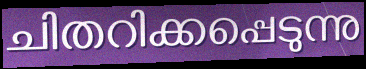
ചിതറിക്കപ്പെടുന്നു